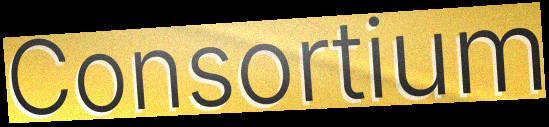
Consortium